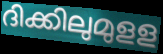
ദിക്കിലുമുളള